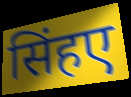
सिंहए